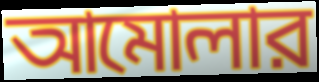
আমোলার